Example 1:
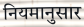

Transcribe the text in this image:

नियमानुसार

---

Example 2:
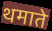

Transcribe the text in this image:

थमाते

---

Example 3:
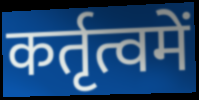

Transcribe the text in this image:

कर्तृत्वमें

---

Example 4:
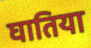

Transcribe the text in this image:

घातिया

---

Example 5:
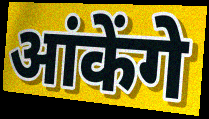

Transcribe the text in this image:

आंकेंगे